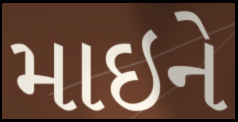
માઇને